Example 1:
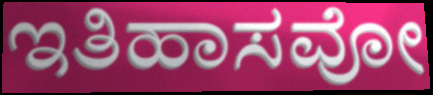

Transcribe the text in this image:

ಇತಿಹಾಸವೋ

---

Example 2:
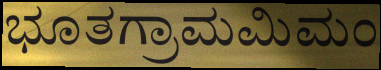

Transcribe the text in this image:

ಭೂತಗ್ರಾಮಮಿಮಂ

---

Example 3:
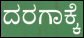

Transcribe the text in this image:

ದರಗಾಕ್ಕೆ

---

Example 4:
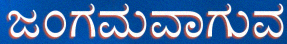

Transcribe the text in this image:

ಜಂಗಮವಾಗುವ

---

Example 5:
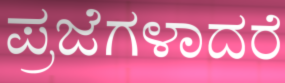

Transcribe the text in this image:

ಪ್ರಜೆಗಳಾದರೆ